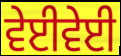
ਵੇਈਵੇਈ